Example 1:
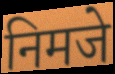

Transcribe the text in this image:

निमजे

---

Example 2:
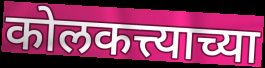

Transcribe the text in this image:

कोलकत्त्याच्या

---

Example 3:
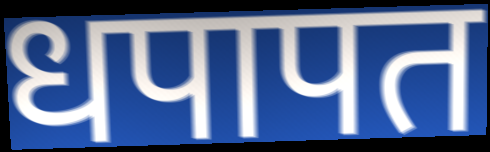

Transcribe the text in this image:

धपापत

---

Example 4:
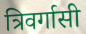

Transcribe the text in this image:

त्रिवर्गासी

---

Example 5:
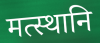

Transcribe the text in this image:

मत्स्थानि